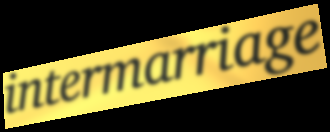
intermarriage